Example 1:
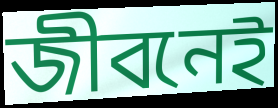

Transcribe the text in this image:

জীবনেই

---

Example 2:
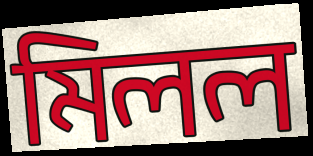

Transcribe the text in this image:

মিলল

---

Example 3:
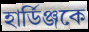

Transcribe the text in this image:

হার্ডিঞ্জকে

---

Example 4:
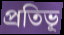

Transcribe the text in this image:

প্রতিভূ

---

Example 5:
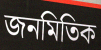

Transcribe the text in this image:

জনমিতিক